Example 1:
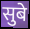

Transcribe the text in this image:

सुबे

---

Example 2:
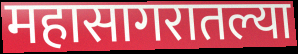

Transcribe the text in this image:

महासागरातल्या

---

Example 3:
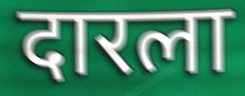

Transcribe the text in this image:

दारला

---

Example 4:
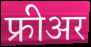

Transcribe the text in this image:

फ्रीअर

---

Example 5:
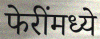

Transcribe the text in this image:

फेरींमध्ये